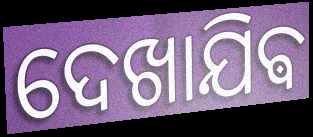
ଦେଖାଯିଵ